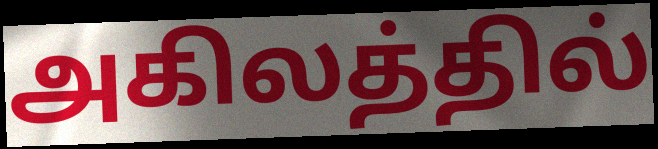
அகிலத்தில்